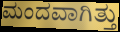
ಮಂದವಾಗಿತ್ತು